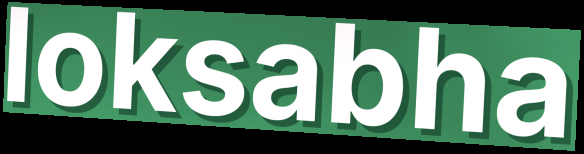
loksabha